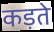
कड़ते